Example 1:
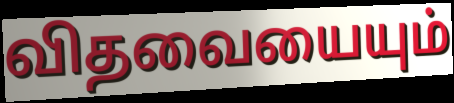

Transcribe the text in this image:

விதவையையும்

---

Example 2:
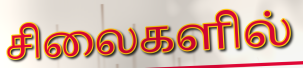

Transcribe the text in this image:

சிலைகளில்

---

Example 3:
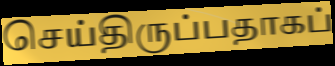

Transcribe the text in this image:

செய்திருப்பதாகப்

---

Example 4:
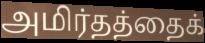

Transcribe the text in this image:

அமிர்தத்தைக்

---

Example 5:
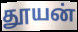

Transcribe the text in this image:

தூயன்